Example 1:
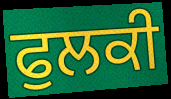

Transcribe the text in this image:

ਫੁਲਕੀ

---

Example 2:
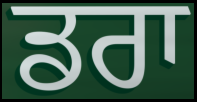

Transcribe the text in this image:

ਡਰਾ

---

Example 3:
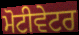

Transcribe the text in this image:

ਮੋਟੀਵੇਟਰ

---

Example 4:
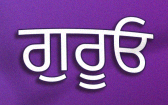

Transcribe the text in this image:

ਗੁਰੂਓ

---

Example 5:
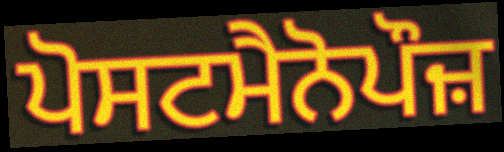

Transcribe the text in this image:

ਪੋਸਟਮੈਨੋਪੌਜ਼